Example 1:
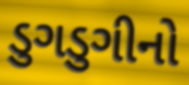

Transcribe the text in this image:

ડુગડુગીનો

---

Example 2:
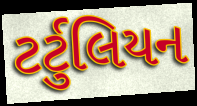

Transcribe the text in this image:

ટર્ટુલિયન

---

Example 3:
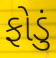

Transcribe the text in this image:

ફોડું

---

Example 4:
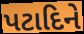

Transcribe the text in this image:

પટાદિને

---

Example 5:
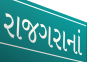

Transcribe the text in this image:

રાજગરાનાં